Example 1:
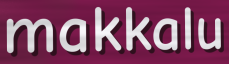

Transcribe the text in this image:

makkalu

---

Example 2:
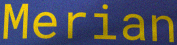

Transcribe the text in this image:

Merian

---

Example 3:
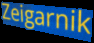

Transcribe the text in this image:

Zeigarnik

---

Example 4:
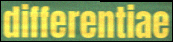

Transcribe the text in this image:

differentiae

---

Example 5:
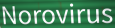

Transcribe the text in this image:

Norovirus